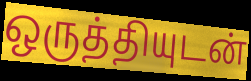
ஒருத்தியுடன்